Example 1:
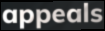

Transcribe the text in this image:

appeals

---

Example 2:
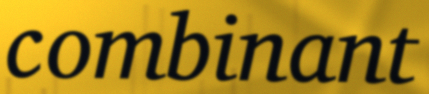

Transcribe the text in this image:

combinant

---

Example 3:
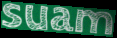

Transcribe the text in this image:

suam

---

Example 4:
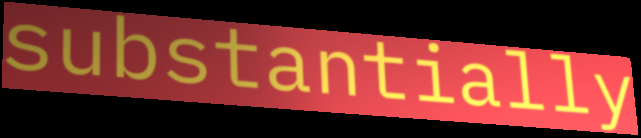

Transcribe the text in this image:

substantially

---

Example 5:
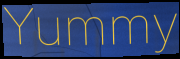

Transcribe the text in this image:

Yummy